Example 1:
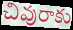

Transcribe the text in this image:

చివురాకు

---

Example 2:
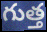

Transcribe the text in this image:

గుత్త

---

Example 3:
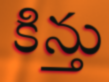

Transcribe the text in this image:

కిన్తు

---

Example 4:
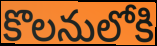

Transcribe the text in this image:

కొలనులోకి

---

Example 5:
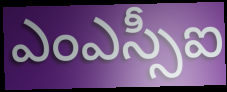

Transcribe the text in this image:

ఎంఎస్సీఐ